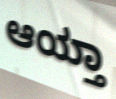
ಆಯ್ತಾ